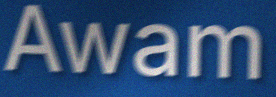
Awam